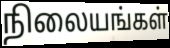
நிலையங்கள்